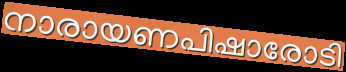
നാരായണപിഷാരോടി